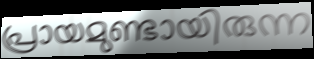
പ്രായമുണ്ടായിരുന്ന